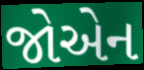
જોએન